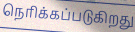
நெரிக்கப்படுகிறது